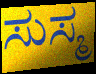
ಸುಸ್ಮ